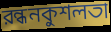
রন্ধনকুশলতা